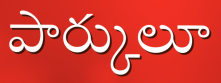
పార్కులూ